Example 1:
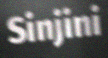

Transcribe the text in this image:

Sinjini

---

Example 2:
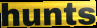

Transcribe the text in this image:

hunts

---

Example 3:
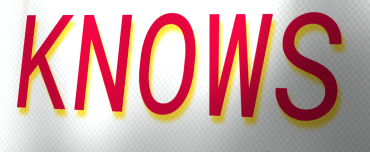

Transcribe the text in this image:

KNOWS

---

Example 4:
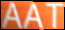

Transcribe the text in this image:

AAT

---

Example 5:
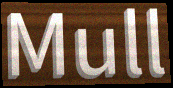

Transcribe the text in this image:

Mull